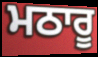
ਮਠਾਰੂ